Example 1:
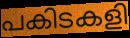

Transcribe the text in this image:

പകിടകളി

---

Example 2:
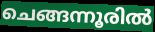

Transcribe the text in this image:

ചെങ്ങന്നൂരിൽ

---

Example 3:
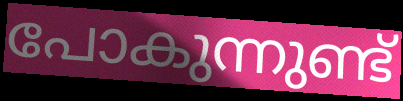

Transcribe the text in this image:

പോകുന്നുണ്ട്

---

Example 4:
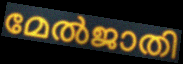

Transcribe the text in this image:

മേൽജാതി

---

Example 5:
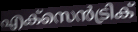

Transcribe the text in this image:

എക്സെൻട്രിക്